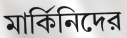
মার্কিনিদের